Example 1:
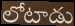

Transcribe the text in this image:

లోటాడు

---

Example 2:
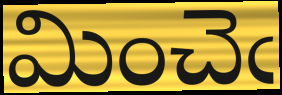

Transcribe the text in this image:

మించెఁ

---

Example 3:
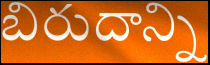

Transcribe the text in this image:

బిరుదాన్ని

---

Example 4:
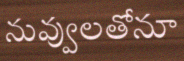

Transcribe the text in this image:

నువ్వులతోనూ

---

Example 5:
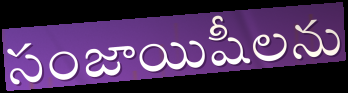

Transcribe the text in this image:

సంజాయిషీలను